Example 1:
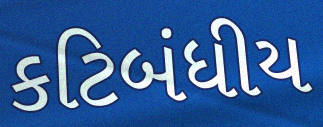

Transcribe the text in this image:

કટિબંધીય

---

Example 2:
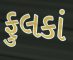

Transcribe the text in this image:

ફુલકાં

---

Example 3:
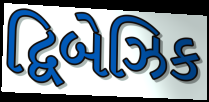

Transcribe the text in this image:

દ્વિબેઝિક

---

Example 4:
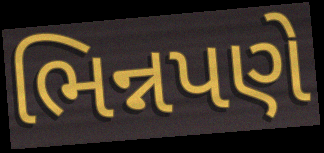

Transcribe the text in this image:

ભિન્નપણે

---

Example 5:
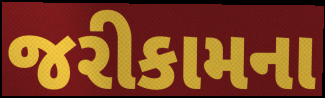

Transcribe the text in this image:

જરીકામના